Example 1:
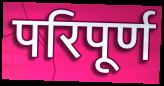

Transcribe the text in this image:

परिपूर्ण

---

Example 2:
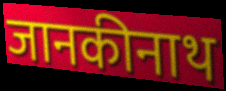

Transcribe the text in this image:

जानकीनाथ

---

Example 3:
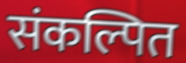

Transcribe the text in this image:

संकल्पित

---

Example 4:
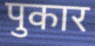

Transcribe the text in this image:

पुकार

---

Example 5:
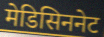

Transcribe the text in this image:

मेडिसिननेट